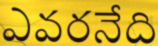
ఎవరనేది